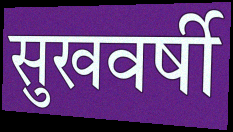
सुखवर्षी